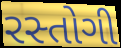
રસ્તોગી